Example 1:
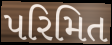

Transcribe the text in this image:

પરિમિત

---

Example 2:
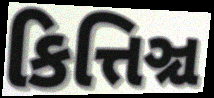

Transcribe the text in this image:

કિત્તિઞ્ચ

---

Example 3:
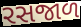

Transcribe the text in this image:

રસજાળ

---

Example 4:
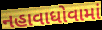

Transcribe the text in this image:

નહાવાધોવામાં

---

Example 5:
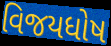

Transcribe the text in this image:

વિજયધોષ